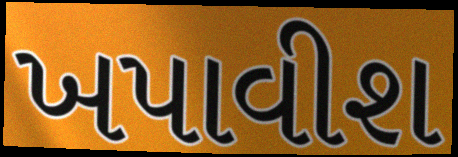
ખપાવીશ